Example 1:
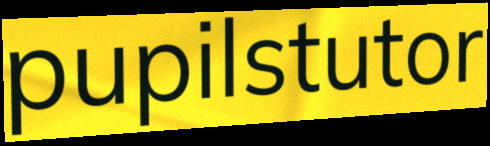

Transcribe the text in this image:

pupilstutor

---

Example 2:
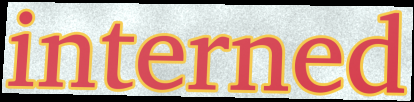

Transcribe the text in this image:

interned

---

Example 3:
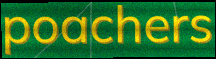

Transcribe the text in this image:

poachers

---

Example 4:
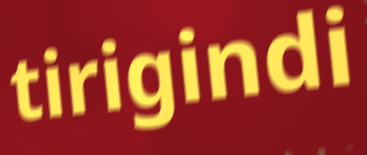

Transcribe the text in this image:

tirigindi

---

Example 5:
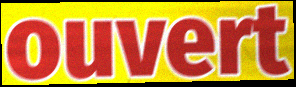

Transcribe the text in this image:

ouvert